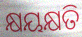
କ୍ଷୟକ୍ଷତି